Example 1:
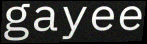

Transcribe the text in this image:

gayee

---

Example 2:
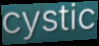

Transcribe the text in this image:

cystic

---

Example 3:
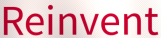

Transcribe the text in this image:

Reinvent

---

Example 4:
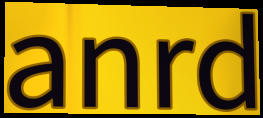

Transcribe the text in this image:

anrd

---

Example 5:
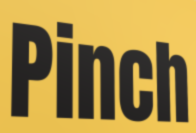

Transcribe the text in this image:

Pinch